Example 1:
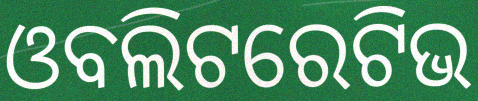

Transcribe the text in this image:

ଓବଲିଟରେଟିଭ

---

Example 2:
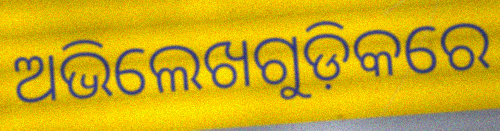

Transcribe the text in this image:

ଅଭିଲେଖଗୁଡ଼ିକରେ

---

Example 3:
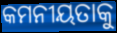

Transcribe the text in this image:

କମନୀୟତାକୁ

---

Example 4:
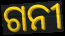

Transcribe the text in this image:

ଗନୀ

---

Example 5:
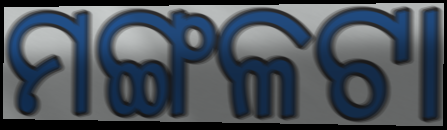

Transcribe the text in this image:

ମଙ୍ଗଳଟା